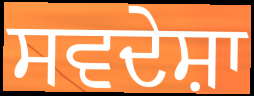
ਸਵਦੇਸ਼ਾ